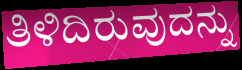
ತಿಳಿದಿರುವುದನ್ನು